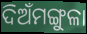
ଦିଅଁମଙ୍ଗୁଳା